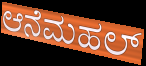
ಆನೆಮಹಲ್